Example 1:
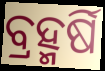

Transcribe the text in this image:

ବ୍ରହ୍ମର୍ଷି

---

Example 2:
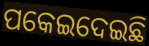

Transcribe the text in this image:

ପକେଇଦେଇଛି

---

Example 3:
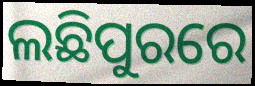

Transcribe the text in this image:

ଲଛିପୁରରେ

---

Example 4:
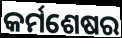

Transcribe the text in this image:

କର୍ମଶେଷର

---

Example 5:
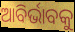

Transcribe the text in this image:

ଆବିର୍ଭାବକୁ